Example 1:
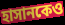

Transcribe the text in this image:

হাসানকেও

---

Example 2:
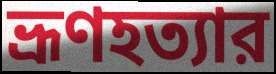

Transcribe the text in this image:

ভ্রূণহত্যার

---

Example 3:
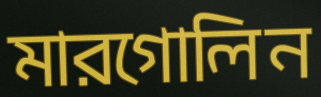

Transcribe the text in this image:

মারগোলিন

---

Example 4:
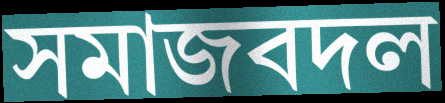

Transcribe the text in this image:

সমাজবদল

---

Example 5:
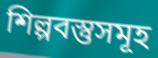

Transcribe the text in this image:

শিল্পবস্তুসমূহ